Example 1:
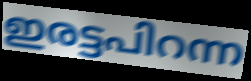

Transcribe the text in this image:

ഇരട്ടപിറന്ന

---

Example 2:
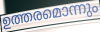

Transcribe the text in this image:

ഉത്തരമൊന്നും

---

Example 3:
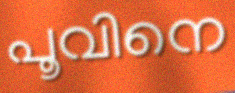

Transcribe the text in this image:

പൂവിനെ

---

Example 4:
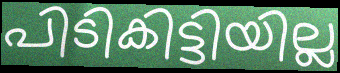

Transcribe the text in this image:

പിടികിട്ടിയില്ല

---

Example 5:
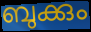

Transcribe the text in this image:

ബുക്കും